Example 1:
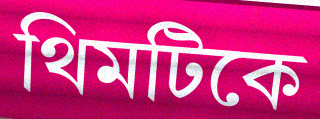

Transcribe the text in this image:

থিমটিকে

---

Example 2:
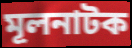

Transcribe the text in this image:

মূলনাটক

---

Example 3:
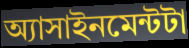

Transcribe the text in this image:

অ্যাসাইনমেন্টটা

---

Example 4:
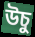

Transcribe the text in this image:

উচু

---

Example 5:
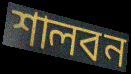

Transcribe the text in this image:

শালবন